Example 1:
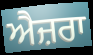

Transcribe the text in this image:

ਐਜ਼ਰਾ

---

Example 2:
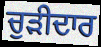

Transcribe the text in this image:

ਚੁੜੀਦਾਰ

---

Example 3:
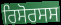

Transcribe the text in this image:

ਰਿਸੋਰਸਸ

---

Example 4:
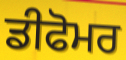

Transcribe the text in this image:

ਡੀਫੋਮਰ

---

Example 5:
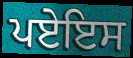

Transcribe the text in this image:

ਪਏਇਸ